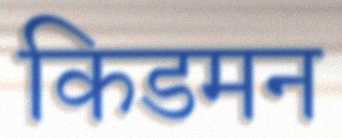
किडमन